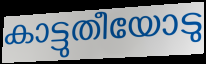
കാട്ടുതീയോടു